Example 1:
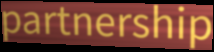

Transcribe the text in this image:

partnership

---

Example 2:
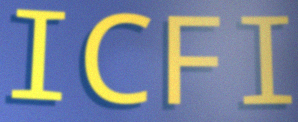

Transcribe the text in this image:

ICFI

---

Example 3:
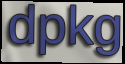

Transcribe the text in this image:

dpkg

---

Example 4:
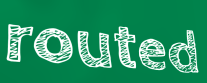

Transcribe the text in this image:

routed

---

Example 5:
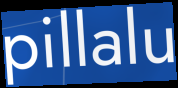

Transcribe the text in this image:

pillalu